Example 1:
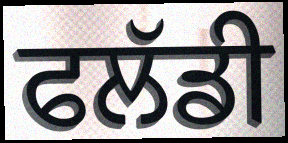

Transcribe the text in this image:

ਫਲੱਡੀ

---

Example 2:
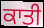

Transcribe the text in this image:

ਕਾਤੀ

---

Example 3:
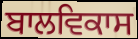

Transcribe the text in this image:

ਬਾਲਵਿਕਾਸ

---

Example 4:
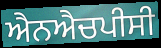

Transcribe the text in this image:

ਐਨਐਚਪੀਸੀ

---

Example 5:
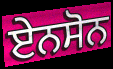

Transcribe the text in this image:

ਏਨਸੋਨ